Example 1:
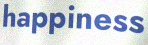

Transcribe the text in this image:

happiness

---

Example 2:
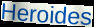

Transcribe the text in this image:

Heroides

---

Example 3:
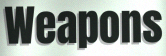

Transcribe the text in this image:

Weapons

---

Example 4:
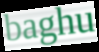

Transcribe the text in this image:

baghu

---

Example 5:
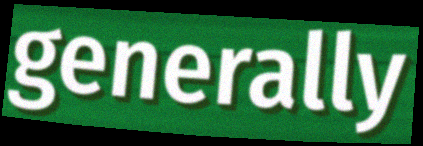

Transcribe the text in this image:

generally